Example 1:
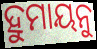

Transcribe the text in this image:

ହୁମାୟନୁ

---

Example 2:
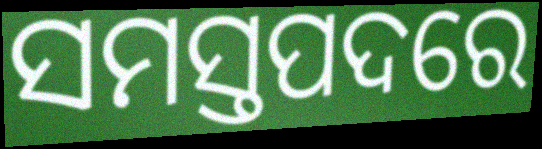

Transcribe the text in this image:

ସମସ୍ତପଦରେ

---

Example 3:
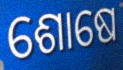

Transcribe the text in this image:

ଶୋଷେ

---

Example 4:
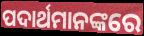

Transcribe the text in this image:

ପଦାର୍ଥମାନଙ୍କରେ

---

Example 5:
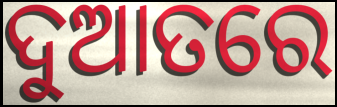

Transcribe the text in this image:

ଦୁଆତରେ